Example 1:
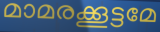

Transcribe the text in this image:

മാമരക്കൂട്ടമേ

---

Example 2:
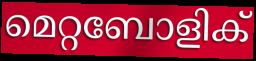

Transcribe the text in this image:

മെറ്റബോളിക്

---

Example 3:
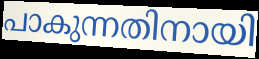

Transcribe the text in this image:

പാകുന്നതിനായി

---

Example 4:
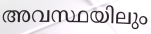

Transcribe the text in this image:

അവസ്ഥയിലും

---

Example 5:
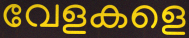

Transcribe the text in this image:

വേളകളെ